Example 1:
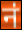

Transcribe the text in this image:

न॑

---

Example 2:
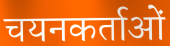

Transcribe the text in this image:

चयनकर्ताओं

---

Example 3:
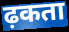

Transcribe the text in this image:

ढ़कता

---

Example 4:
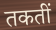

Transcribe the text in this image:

तकतीं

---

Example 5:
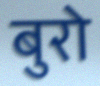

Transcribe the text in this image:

बुरो